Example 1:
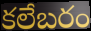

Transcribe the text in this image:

కలేబరం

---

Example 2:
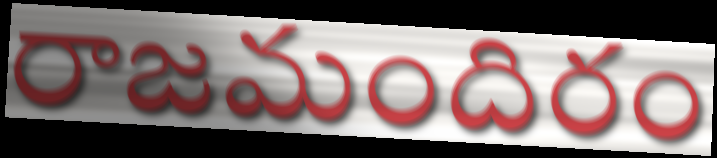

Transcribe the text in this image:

రాజమందిరం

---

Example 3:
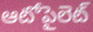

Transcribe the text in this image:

ఆటోపైలెట్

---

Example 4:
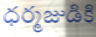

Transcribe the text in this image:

ధర్మజుడికి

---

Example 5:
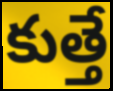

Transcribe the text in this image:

కుత్తే